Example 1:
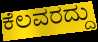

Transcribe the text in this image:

ಕೆಲವರದ್ದು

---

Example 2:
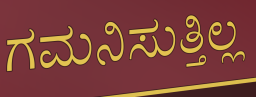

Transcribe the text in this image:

ಗಮನಿಸುತ್ತಿಲ್ಲ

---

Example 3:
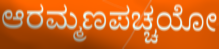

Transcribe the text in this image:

ಆರಮ್ಮಣಪಚ್ಚಯೋ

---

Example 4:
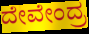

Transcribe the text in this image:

ದೇವೇಂದ್ರ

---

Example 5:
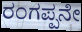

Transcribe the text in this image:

ರಂಗಪ್ಪನೇ